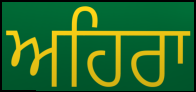
ਅਹਿਰਾ